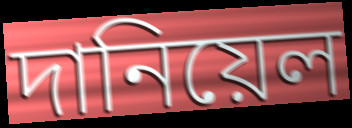
দানিয়েল